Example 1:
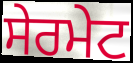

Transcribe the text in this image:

ਸੇਰਮੇਟ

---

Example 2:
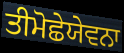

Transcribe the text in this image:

ਤੀਮੋਛੇਯੇਵਨਾ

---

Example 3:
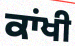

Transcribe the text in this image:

ਕਾਂਖੀ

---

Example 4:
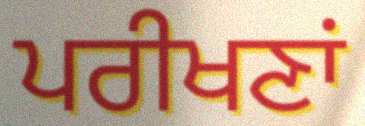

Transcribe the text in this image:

ਪਰੀਖਣਾਂ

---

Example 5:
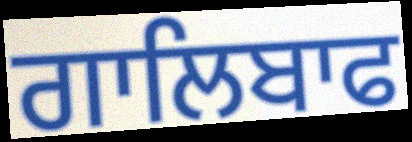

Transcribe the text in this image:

ਗਾਲਿਬਾਫ